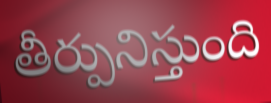
తీర్పునిస్తుంది